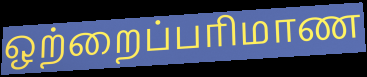
ஒற்றைப்பரிமாண